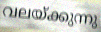
വലയ്ക്കുന്നു